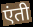
एंती